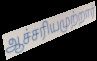
ஆச்சரியமுற்றார்